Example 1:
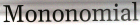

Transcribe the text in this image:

Mononomial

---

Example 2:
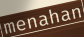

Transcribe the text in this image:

menahan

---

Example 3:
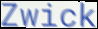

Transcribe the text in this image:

Zwick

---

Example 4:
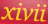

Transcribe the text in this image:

xivii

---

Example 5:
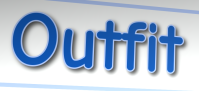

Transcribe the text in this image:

Outfit